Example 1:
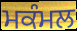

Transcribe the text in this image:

ਮਕੰਮਲ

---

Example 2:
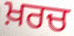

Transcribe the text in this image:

ਖ਼ਰਚ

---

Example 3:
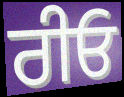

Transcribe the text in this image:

ਰੀਓ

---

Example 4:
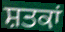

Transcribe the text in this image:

ਸ਼ਤਕਾਂ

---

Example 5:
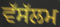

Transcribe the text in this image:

ਵੱਸੱਲਮ